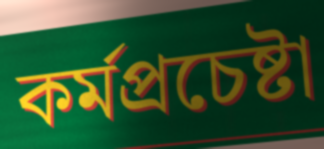
কর্মপ্রচেষ্টা